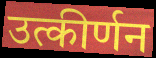
उत्कीर्णन